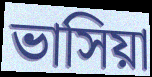
ভাসিয়া